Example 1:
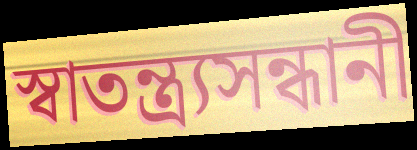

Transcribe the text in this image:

স্বাতন্ত্র্যসন্ধানী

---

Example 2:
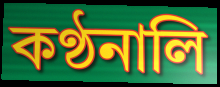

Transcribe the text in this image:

কণ্ঠনালি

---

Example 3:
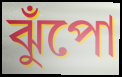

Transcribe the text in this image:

ঝুঁপো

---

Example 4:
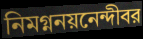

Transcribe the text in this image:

নিমগ্ননয়নেন্দীবর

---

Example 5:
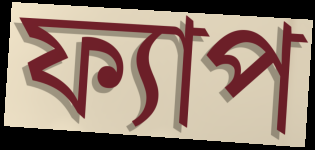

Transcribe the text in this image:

ফ্যাপ